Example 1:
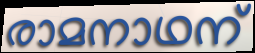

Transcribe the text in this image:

രാമനാഥന്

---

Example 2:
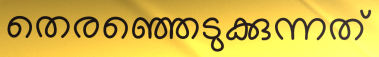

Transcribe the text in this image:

തെരഞ്ഞെടുക്കുന്നത്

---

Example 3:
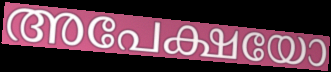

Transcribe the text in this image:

അപേക്ഷയോ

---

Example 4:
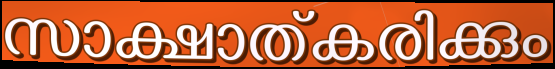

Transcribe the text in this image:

സാക്ഷാത്കരിക്കും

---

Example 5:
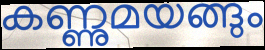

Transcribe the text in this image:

കണ്ണുമയങ്ങും